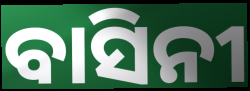
ବାସିନୀ